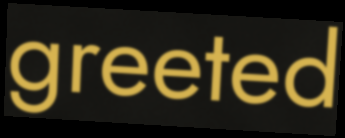
greeted